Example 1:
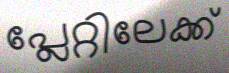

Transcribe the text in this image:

പ്ലേറ്റിലേക്ക്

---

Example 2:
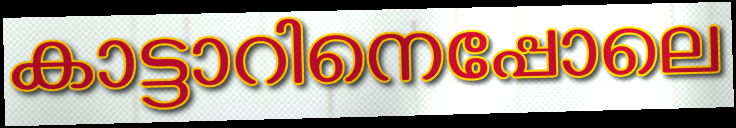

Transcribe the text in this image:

കാട്ടാറിനെപ്പോലെ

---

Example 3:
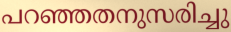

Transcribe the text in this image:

പറഞ്ഞതനുസരിച്ചു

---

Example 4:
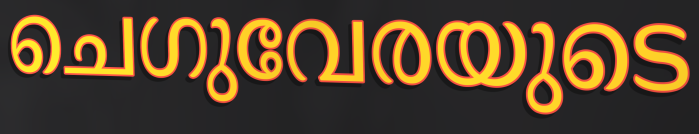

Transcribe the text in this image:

ചെഗുവേരയുടെ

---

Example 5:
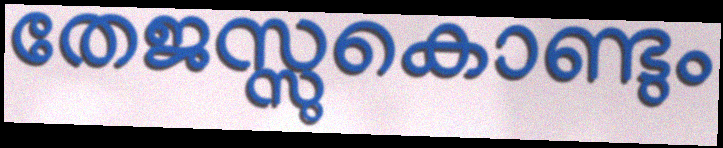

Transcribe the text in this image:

തേജസ്സുകൊണ്ടും